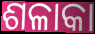
ଶଳାକା